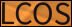
LCOS